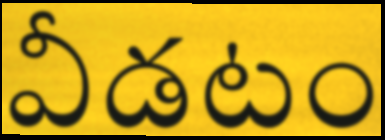
వీడటం